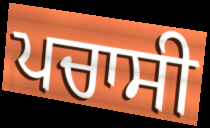
ਪਚਾਸੀ